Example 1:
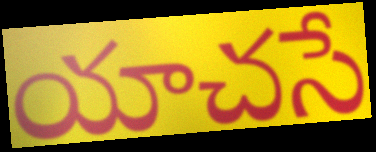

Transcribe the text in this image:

యాచసే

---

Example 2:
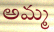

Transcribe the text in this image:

అమ్మ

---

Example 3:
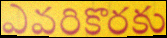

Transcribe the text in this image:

ఎవరికొరకు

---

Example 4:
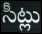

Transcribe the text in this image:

సీట్లు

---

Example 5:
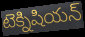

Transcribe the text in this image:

టెక్నిషియన్